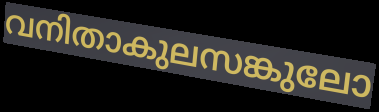
വനിതാകുലസങ്കുലോ